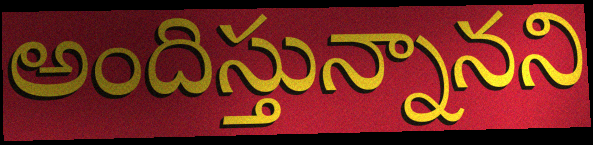
అందిస్తున్నానని